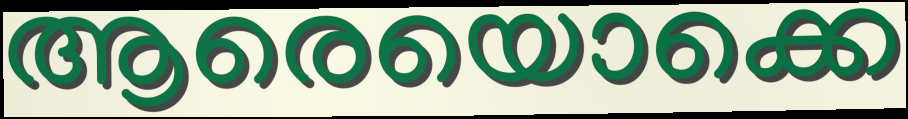
ആരെയൊക്കെ